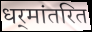
धर्मांतरित